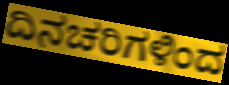
ದಿನಚರಿಗಳಿಂದ